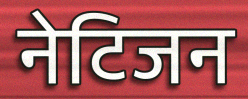
नेटिजन